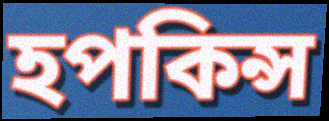
হপকিন্স